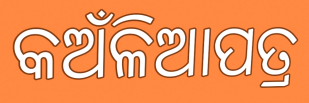
କଅଁଳିଆପତ୍ର